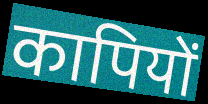
कापियों